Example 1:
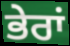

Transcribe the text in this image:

ਭੇਰਾਂ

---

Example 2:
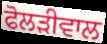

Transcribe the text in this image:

ਫੋਲੜੀਵਾਲ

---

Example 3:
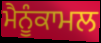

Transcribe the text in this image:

ਮੈਨੂੰਕਾਮਲ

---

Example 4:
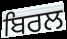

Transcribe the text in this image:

ਬਿਰਲ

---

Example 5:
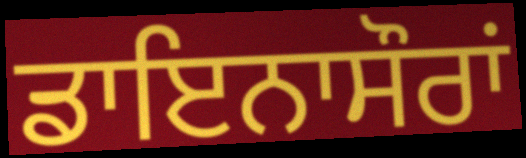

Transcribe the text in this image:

ਡਾਇਨਾਸੌਰਾਂ